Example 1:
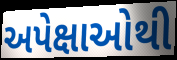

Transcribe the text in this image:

અપેક્ષાઓથી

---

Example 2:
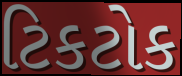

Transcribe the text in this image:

ટિકટોક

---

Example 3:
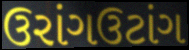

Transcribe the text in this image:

ઉરાંગઉટાંગ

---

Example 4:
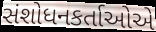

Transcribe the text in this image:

સંશોધનકર્તાઓએ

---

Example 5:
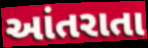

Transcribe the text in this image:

આંતરાતા